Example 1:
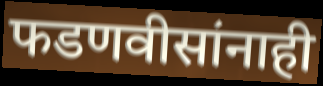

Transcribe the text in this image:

फडणवीसांनाही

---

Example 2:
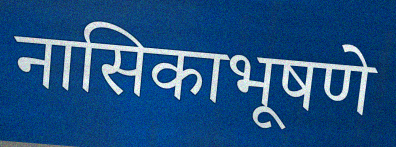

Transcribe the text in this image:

नासिकाभूषणे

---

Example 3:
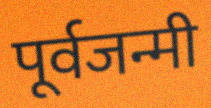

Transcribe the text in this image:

पूर्वजन्मी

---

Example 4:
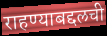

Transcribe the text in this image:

राहण्याबद्दलची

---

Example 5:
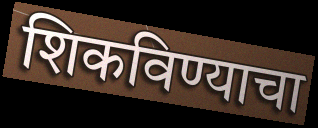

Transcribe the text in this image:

शिकविण्याचा